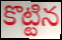
కొట్టిన